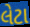
લેટા